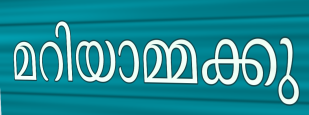
മറിയാമ്മക്കു